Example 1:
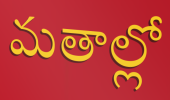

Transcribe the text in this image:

మతాల్లో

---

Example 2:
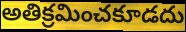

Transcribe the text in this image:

అతిక్రమించకూడదు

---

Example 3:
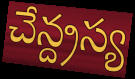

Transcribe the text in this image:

చేన్ద్రస్య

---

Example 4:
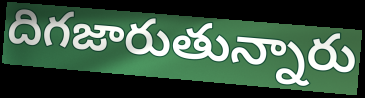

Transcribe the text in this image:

దిగజారుతున్నారు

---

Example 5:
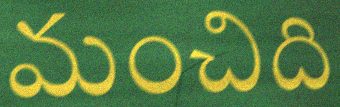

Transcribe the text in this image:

మంచిది